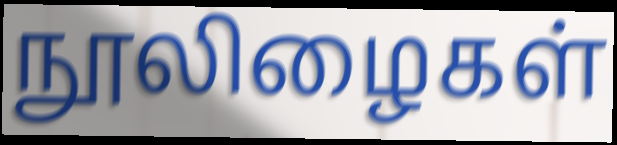
நூலிழைகள்